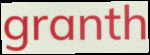
granth